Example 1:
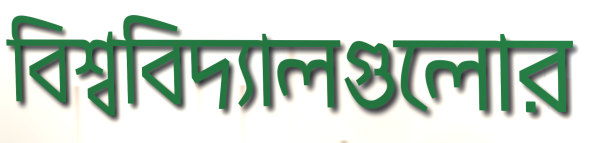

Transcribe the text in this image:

বিশ্ববিদ্যালগুলোর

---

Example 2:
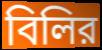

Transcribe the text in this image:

বিলির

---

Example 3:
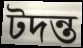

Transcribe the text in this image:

টদন্ত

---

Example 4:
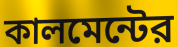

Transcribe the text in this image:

কালমেন্টের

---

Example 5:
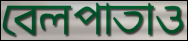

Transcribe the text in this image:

বেলপাতাও